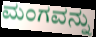
ಮಂಗವನ್ನು